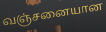
வஞ்சனையான